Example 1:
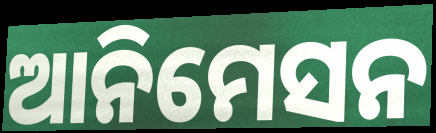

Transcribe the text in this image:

ଆନିମେସନ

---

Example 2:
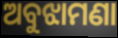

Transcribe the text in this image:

ଅବୁଝାମଣା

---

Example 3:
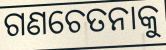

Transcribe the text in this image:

ଗଣଚେତନାକୁ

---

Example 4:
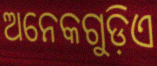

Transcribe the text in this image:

ଅନେକଗୁଡ଼ିଏ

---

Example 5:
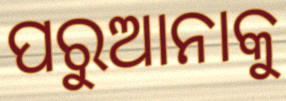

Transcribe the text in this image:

ପରୁଆନାକୁ